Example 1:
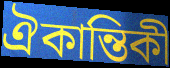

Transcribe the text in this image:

ঐকান্তিকী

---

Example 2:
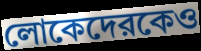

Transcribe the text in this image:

লোকেদেরকেও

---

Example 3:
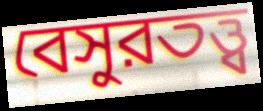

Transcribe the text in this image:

বেসুরতত্ত্ব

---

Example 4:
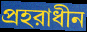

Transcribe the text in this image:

প্রহরাধীন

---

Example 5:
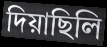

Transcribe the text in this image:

দিয়াছিলি